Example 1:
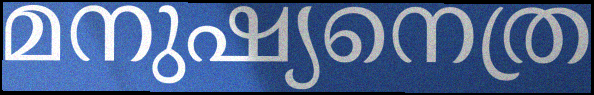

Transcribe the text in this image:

മനുഷ്യനെത്ര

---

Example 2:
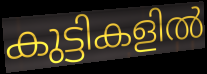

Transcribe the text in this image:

കുട്ടികളിൽ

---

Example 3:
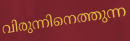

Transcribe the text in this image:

വിരുന്നിനെത്തുന്ന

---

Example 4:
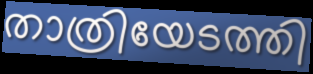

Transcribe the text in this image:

താത്രിയേടത്തി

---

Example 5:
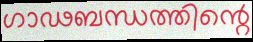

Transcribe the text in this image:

ഗാഢബന്ധത്തിന്റെ